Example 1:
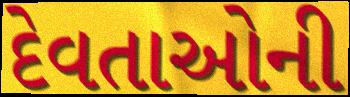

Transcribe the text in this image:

દેવતાઓની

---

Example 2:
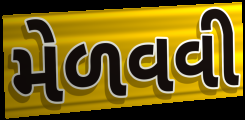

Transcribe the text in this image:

મેળવવી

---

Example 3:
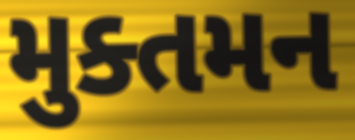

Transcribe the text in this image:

મુક્તમન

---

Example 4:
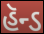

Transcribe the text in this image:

હૅન્ડ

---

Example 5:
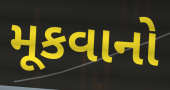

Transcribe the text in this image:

મૂકવાનો